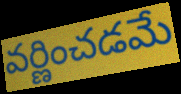
వర్ణించడమే